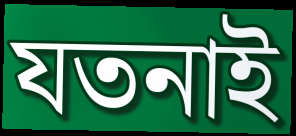
যতনাই